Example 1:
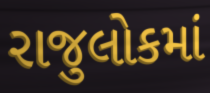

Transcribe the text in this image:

રાજુલોકમાં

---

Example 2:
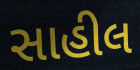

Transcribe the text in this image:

સાહીલ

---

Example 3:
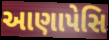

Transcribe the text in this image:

આણાપેસિ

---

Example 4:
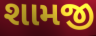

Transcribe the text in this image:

શામજી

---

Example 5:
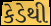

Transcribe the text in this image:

કેડેથી